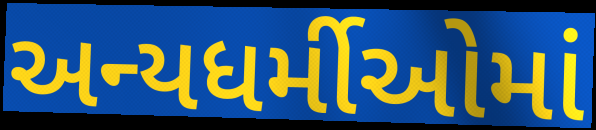
અન્યધર્મીઓમાં